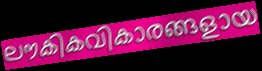
ലൗകികവികാരങ്ങളായ